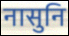
नासुनि